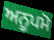
ਅਨੂਪਮੋ